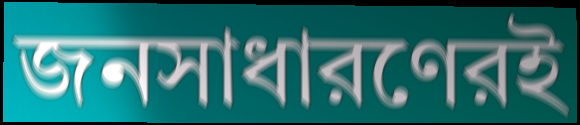
জনসাধারণেরই